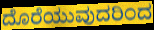
ದೊರೆಯುವುದರಿಂದ